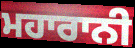
ਮਹਾਰਾਨੀ